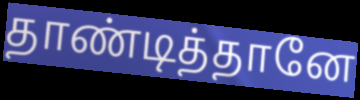
தாண்டித்தானே